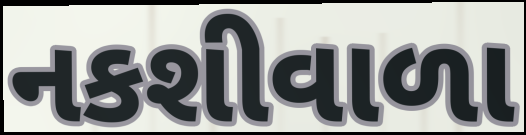
નકશીવાળા